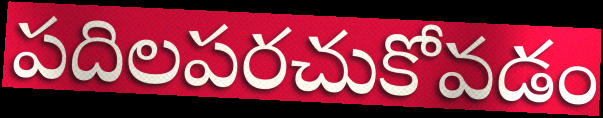
పదిలపరచుకోవడం